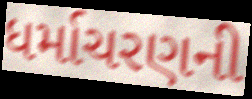
ધર્માચરણની